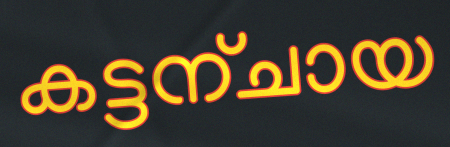
കട്ടന്ചായ